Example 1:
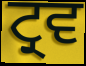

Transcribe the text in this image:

ਟ੍ਰਵ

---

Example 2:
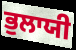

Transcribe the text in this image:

ਭੁਲਾਯੀ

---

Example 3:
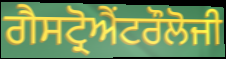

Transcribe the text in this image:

ਗੈਸਟ੍ਰੋਐਂਟਰੌਲੋਜੀ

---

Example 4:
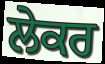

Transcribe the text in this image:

ਲੇਕਰ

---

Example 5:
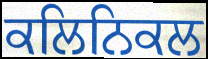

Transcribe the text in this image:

ਕਲਿਨਿਕਲ